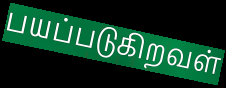
பயப்படுகிறவள்